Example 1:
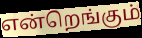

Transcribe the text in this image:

என்றெங்கும்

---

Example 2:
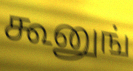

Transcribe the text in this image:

கூனுங்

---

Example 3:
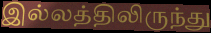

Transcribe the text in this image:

இல்லத்திலிருந்து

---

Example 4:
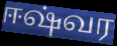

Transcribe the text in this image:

ஈஷ்வர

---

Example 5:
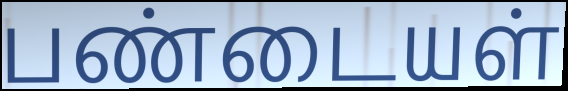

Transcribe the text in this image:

பண்டையள்